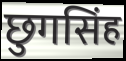
छुगसिंह